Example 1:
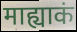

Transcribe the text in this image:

माह्याकं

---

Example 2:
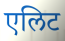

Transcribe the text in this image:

एलिट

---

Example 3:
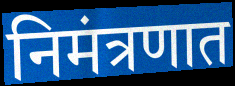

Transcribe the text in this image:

निमंत्रणात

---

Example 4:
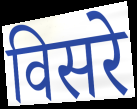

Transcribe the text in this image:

विसरे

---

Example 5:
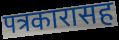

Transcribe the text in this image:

पत्रकारासह